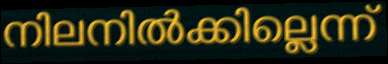
നിലനിൽക്കില്ലെന്ന്